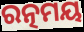
ରତ୍ନମୟ